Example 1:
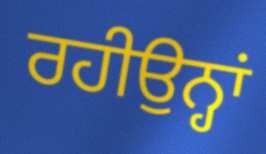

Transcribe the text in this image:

ਰਹੀਉਨ੍ਹਾਂ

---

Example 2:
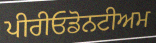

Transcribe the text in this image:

ਪੀਰੀਓਡੋਨਟੀਅਮ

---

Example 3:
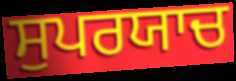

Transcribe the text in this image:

ਸੁਪਰਯਾਚ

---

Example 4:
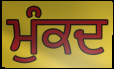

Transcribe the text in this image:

ਮੁੰਕਦ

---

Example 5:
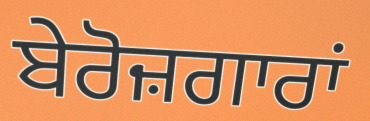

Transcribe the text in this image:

ਬੇਰੋਜ਼ਗਾਰਾਂ